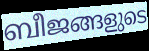
ബീജങ്ങളുടെ